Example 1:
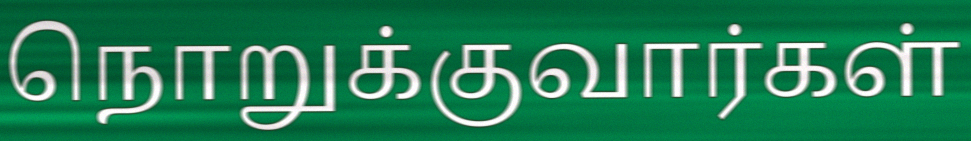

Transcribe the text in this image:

நொறுக்குவார்கள்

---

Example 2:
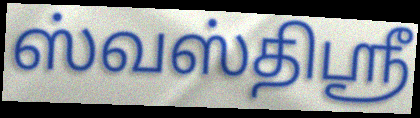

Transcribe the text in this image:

ஸ்வஸ்திஸ்ரீ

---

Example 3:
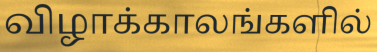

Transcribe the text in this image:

விழாக்காலங்களில்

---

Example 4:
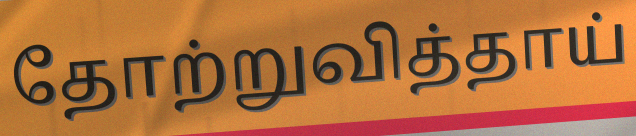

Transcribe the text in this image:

தோற்றுவித்தாய்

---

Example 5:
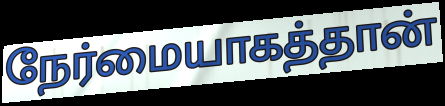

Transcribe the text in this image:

நேர்மையாகத்தான்